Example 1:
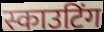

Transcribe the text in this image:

स्काउटिंग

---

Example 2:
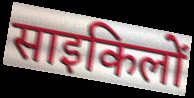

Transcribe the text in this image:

साइकिलों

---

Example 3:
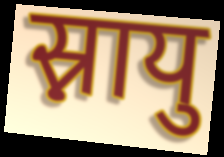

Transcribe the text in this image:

स्नायु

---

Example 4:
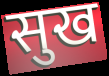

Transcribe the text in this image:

सुख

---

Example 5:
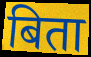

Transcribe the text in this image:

बिता